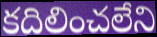
కదిలించలేని